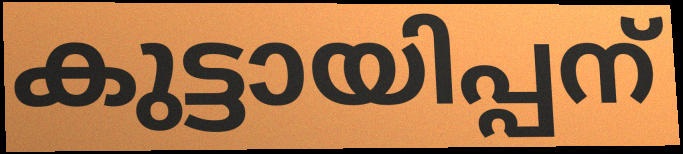
കുട്ടായിപ്പന്